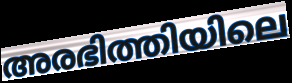
അരഭിത്തിയിലെ